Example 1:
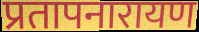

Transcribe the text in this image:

प्रतापनारायण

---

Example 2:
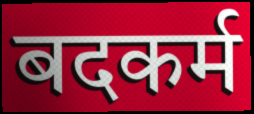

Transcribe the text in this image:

बदकर्म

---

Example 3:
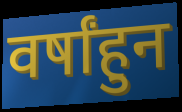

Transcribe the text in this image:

वर्षांहुन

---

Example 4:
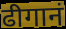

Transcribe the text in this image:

ढीगानं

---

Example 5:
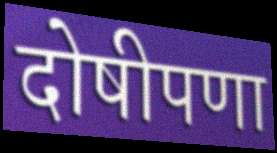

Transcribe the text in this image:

दोषीपणा